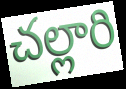
చల్లారి